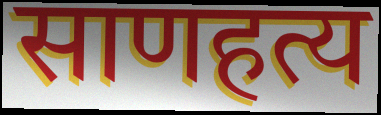
साणहत्य